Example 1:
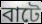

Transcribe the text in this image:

বাটে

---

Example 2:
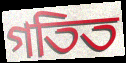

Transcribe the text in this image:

গতিত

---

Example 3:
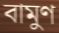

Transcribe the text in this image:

বামুণ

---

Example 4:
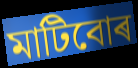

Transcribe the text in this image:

মাটিবোৰ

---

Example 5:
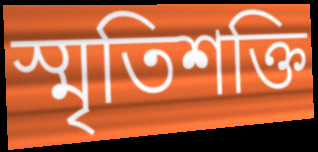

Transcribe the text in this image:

স্মৃতিশক্তি